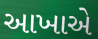
આખાએ